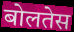
बोलतेस